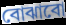
বোঝাবো